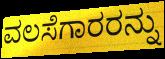
ವಲಸೆಗಾರರನ್ನು